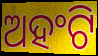
ଅହଂଟି